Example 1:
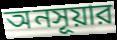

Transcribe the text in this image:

অনসূয়ার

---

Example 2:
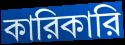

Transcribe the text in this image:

কারিকারি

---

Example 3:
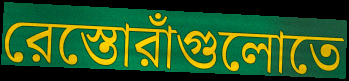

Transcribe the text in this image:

রেস্তোরাঁগুলোতে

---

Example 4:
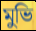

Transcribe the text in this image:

মুভি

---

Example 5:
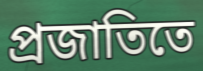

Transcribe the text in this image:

প্রজাতিতে